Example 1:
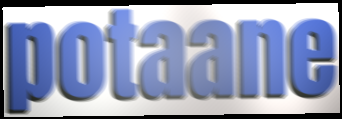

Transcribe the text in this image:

potaane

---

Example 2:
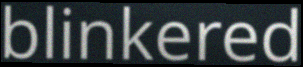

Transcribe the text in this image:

blinkered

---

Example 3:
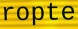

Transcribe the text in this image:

ropte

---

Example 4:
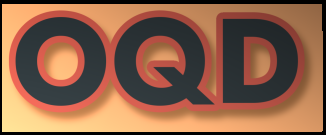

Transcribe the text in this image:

OQD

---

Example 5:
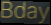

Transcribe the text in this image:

Bday